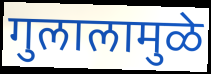
गुलालामुळे